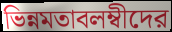
ভিন্নমতাবলম্বীদের